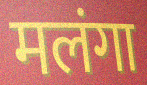
मलंगा